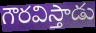
గౌరవిస్తాడు